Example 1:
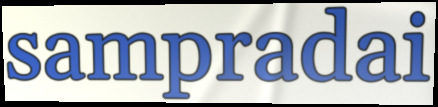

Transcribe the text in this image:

sampradai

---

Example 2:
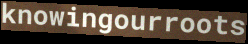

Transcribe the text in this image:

knowingourroots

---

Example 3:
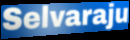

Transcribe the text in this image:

Selvaraju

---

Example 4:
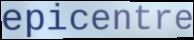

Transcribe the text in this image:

epicentre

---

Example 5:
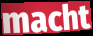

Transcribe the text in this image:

macht